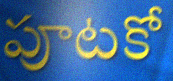
పూటకో